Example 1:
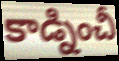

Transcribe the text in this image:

కాడ్నించీ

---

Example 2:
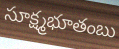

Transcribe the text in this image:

సూక్ష్మభూతంబు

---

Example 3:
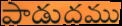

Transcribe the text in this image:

పాడుదము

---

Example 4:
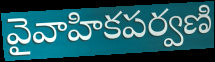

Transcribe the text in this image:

వైవాహికపర్వణి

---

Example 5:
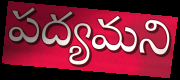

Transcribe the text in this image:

పద్యమని